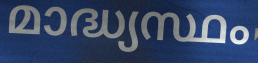
മാദ്ധ്യസ്ഥം